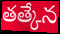
తత్కేన